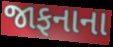
જાફનાના